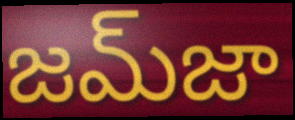
జమ్‌జా